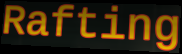
Rafting